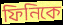
ফিনিকে